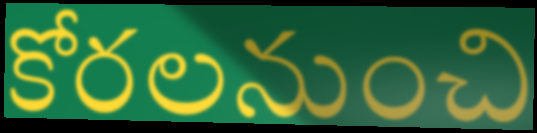
కోరలనుంచి